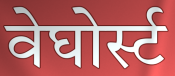
वेघोर्स्ट